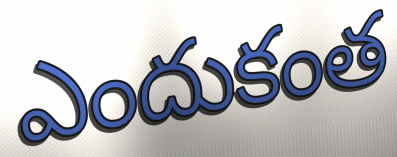
ఎందుకంత